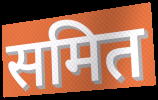
समित